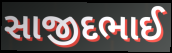
સાજીદભાઈ